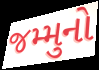
જમ્મુનો